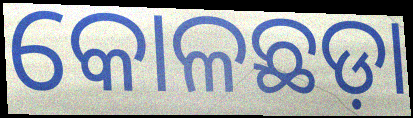
କୋଳଛଡ଼ା